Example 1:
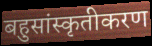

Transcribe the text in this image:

बहुसांस्कृतीकरण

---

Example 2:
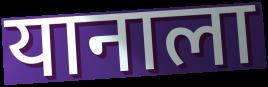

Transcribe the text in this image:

यानाला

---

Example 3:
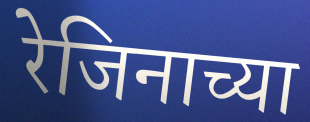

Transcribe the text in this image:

रेजिनाच्या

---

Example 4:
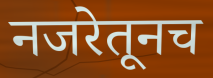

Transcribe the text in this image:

नजरेतूनच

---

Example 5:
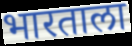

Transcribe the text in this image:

भारताला